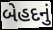
બેહદનું